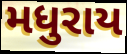
મધુરાય